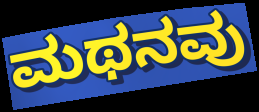
ಮಥನವು